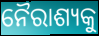
ନୈରାଶ୍ୟକୁ